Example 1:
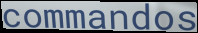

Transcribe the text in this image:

commandos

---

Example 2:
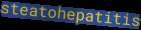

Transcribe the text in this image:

steatohepatitis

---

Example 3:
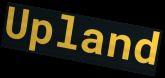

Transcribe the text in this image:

Upland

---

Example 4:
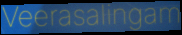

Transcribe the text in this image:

Veerasalingam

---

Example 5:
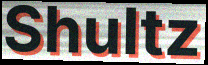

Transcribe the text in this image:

Shultz